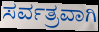
ಸರ್ವತ್ರವಾಗಿ